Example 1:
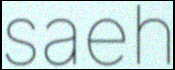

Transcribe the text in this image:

saeh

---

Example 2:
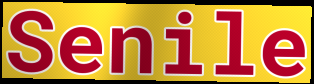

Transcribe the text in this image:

Senile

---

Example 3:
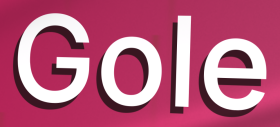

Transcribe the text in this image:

Gole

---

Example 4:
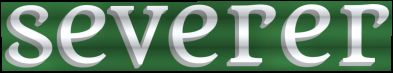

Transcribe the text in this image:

severer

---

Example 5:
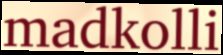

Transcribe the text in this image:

madkolli